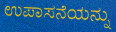
ಉಪಾಸನೆಯನ್ನು